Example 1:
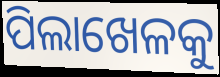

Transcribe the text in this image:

ପିଲାଖେଳକୁ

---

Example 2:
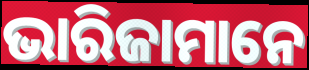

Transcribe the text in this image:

ଭାରିଜାମାନେ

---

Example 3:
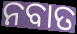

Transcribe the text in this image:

ନବାତ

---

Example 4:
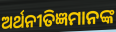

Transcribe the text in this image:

ଅର୍ଥନୀତିଜ୍ଞମାନଙ୍କ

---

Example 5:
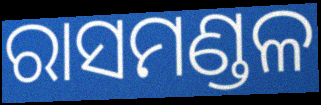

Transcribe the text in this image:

ରାସମଣ୍ଡଳ